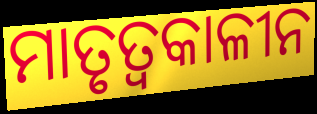
ମାତୃତ୍ୱକାଳୀନ